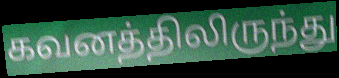
கவனத்திலிருந்து